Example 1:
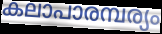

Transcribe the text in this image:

കലാപാരമ്പര്യം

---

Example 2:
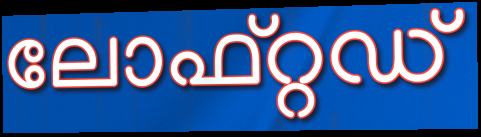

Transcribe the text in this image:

ലോഫ്റ്റഡ്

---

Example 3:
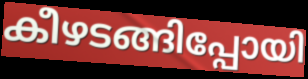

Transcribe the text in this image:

കീഴടങ്ങിപ്പോയി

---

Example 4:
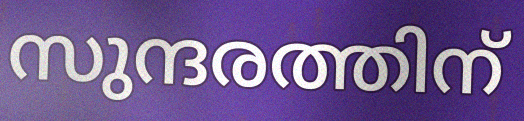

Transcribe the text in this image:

സുന്ദരത്തിന്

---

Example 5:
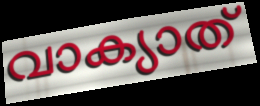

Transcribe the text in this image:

വാക്യാത്